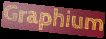
Graphium